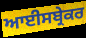
ਆਈਸਬ੍ਰੇਕਰ